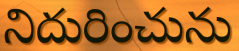
నిదురించును